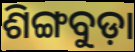
ଶିଙ୍ଗବୁଡ଼ା